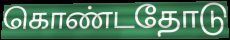
கொண்டதோடு